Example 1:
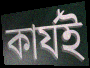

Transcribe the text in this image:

কাৰ্যই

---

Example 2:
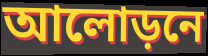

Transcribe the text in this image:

আলোড়নে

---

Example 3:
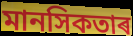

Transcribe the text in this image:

মানসিকতাৰ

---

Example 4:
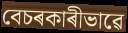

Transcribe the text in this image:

বেচৰকাৰীভাৱে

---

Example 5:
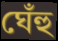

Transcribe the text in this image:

ঘেঁহু